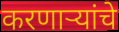
करणाऱ्यांचे